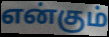
என்கும்